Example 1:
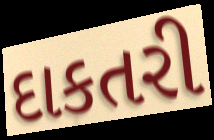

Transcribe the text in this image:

દાકતરી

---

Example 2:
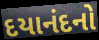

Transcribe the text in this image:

દયાનંદનો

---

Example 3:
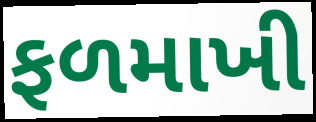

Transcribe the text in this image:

ફળમાખી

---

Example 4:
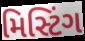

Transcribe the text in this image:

મિસ્ટિંગ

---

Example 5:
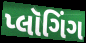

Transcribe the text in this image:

પ્લૉગિંગ